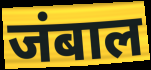
जंबाल